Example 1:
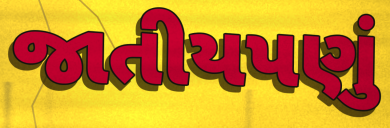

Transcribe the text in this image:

જાતીયપણું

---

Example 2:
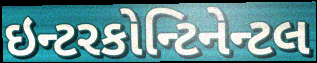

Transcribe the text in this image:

ઇન્ટરકોન્ટિનેન્ટલ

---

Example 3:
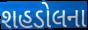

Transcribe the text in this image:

શહડોલના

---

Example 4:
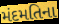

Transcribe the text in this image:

મંદમતિના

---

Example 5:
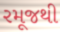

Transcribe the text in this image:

રમૂજથી